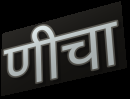
णीचा